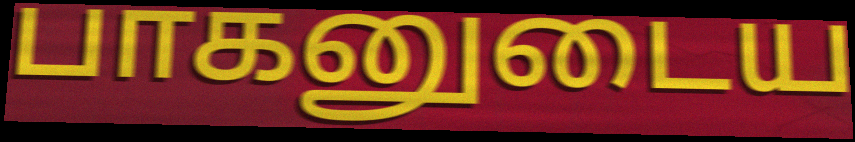
பாகனுடைய